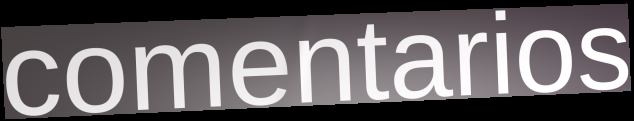
comentarios